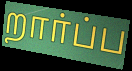
றார்ப்ப